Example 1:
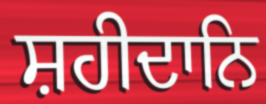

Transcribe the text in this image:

ਸ਼ਹੀਦਾਨਿ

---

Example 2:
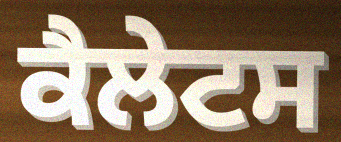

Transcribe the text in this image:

ਕੈਲੇਟਸ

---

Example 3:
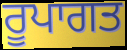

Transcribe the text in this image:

ਰੂਪਾਗਤ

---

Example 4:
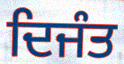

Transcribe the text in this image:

ਦਿਜੰਤ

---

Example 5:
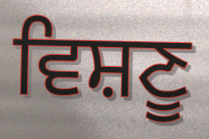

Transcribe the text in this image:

ਵਿਸ਼ਣੂ